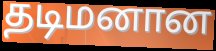
தடிமனான